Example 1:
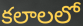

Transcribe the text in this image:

కలాలలో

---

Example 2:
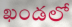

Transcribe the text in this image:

ఖండలో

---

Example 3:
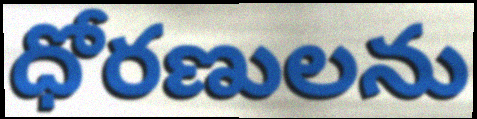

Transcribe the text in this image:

ధోరణులను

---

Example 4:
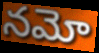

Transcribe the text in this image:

నమో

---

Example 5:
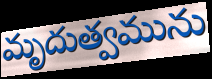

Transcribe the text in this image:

మృదుత్వమును